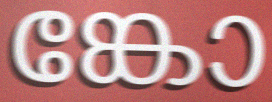
ങ്കോ